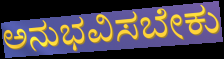
ಅನುಭವಿಸಬೇಕು